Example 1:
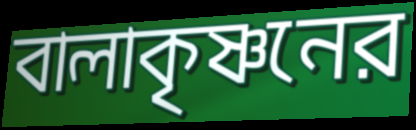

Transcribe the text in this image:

বালাকৃষ্ণনের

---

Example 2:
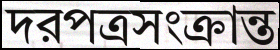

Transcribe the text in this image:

দরপত্রসংক্রান্ত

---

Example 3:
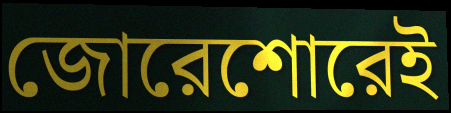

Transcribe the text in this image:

জোরেশোরেই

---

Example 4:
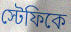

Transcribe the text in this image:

স্টেফিকে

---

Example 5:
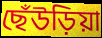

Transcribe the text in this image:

ছেঁউড়িয়া